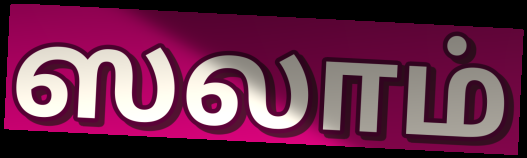
ஸலாம்